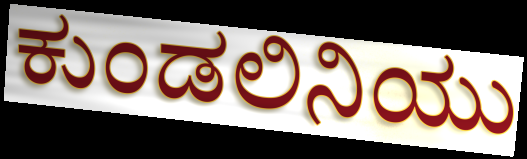
ಕುಂಡಲಿನಿಯು